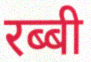
रब्बी